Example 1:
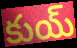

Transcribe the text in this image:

కుయ్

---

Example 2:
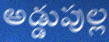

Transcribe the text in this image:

అడ్డుపుల్ల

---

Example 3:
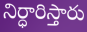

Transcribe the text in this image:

నిర్ధారిస్తారు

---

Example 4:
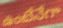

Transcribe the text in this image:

ఉంటేనేగా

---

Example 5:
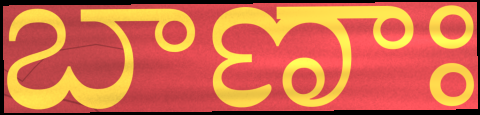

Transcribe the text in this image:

బాణాః